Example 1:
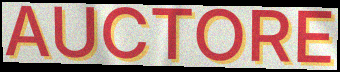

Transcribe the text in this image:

AUCTORE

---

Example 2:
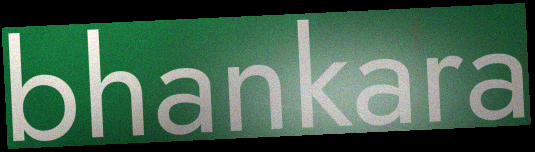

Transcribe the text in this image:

bhankara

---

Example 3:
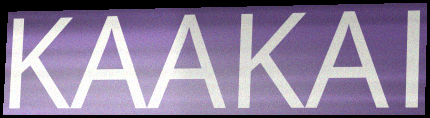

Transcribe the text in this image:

KAAKAI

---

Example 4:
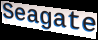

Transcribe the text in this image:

Seagate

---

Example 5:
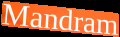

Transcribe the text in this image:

Mandram